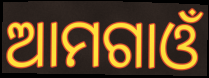
ଆମଗାଓଁ